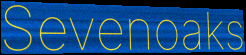
Sevenoaks